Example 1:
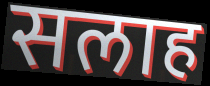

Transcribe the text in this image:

सलाह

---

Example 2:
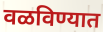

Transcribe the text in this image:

वळविण्यात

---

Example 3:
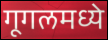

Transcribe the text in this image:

गूगलमध्ये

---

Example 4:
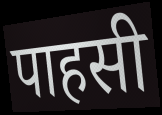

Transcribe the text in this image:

पाहसी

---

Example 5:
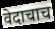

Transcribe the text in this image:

वेदाचाच